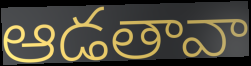
ఆడతావా